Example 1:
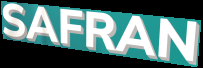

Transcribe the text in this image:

SAFRAN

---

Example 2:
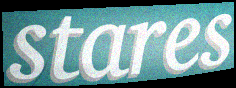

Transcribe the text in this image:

stares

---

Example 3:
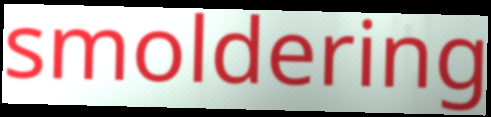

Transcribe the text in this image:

smoldering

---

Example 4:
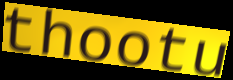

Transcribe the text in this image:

thootu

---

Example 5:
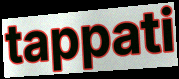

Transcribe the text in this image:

tappati